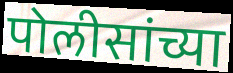
पोलीसांच्या